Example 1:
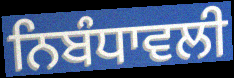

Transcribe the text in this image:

ਨਿਬੰਧਾਵਲੀ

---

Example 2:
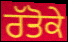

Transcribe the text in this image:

ਰੱਤੋਕੇ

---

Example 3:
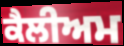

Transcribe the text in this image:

ਕੈਲੀਅਮ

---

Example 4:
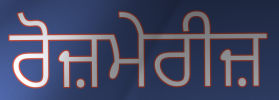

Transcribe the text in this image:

ਰੋਜ਼ਮੇਰੀਜ਼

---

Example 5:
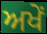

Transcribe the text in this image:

ਅਖੇਂ